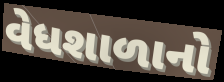
વેધશાળાનો